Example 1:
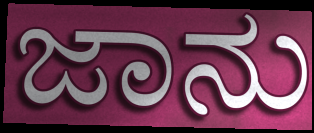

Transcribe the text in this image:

ಜಾನು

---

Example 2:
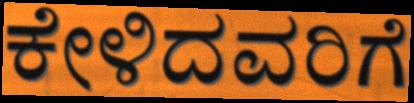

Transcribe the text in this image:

ಕೇಳಿದವರಿಗೆ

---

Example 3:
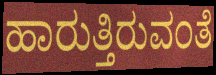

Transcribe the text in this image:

ಹಾರುತ್ತಿರುವಂತೆ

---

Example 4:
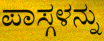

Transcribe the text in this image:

ಪಾಸ್ಗಳನ್ನು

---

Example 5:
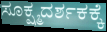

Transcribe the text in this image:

ಸೂಕ್ಷ್ಮದರ್ಶಕಕ್ಕೆ